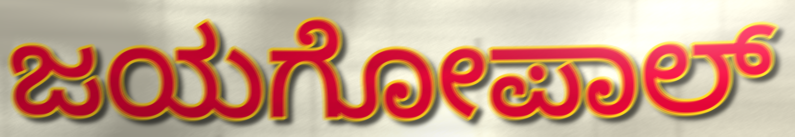
ಜಯಗೋಪಾಲ್